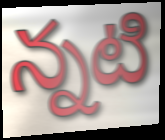
న్నటి